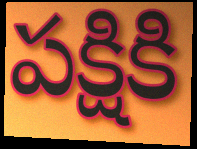
పక్షికి